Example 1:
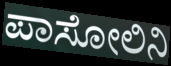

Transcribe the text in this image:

ಪಾಸೋಲಿನಿ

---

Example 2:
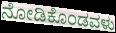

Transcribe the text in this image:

ನೋಡಿಕೊಂಡವಳು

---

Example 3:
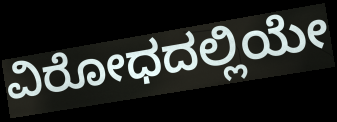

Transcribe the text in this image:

ವಿರೋಧದಲ್ಲಿಯೇ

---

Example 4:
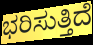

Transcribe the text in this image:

ಭರಿಸುತ್ತಿದೆ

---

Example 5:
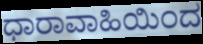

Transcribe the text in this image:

ಧಾರಾವಾಹಿಯಿಂದ